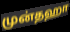
முன்தஹா